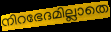
നിറഭേദമില്ലാതെ